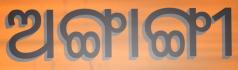
ଅଙ୍ଗାଙ୍ଗୀ